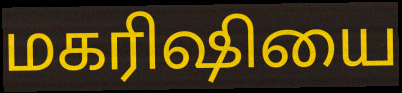
மகரிஷியை